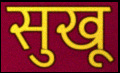
सुखू